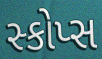
સ્કોપ્સ